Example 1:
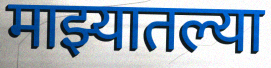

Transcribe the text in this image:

माझ्यातल्या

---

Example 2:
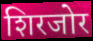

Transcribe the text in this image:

शिरजोर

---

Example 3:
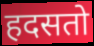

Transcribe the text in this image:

हदसतो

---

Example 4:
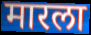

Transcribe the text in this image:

मारला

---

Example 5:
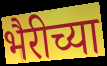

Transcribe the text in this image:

भैरीच्या